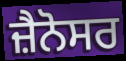
ਜ਼ੈਨੋਸਰ